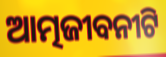
ଆତ୍ମଜୀବନୀଟି